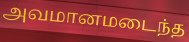
அவமானமடைந்த